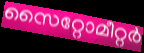
സൈറ്റോമീറ്റർ